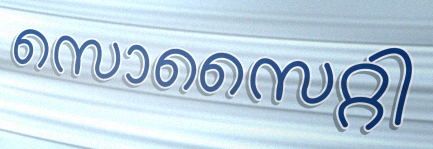
സൊസൈറ്റി